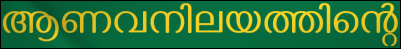
ആണവനിലയത്തിന്റെ